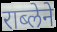
राब्लेने